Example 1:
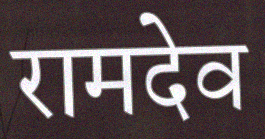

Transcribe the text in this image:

रामदेव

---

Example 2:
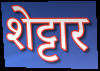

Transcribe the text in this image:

शेट्टार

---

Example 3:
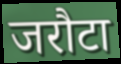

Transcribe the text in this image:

जरौटा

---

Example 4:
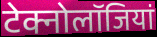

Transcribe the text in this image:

टेक्नोलॉजियां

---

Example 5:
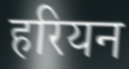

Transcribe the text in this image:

हरियन